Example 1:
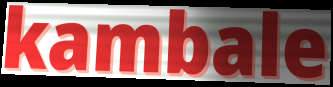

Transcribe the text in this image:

kambale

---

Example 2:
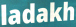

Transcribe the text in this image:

ladakh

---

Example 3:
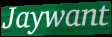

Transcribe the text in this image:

Jaywant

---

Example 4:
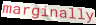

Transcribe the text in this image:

marginally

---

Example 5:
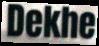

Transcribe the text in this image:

Dekhe